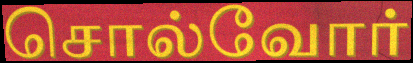
சொல்வோர்